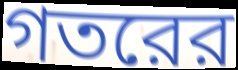
গতরের